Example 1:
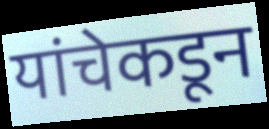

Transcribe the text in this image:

यांचेकडून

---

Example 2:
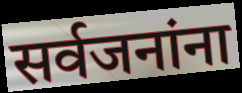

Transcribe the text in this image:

सर्वजनांना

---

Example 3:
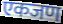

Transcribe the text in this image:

एकजण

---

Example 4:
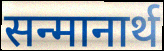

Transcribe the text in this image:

सन्मानार्थ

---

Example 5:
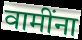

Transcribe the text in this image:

वामींना